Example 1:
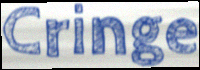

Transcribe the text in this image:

Cringe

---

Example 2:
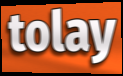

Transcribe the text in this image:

tolay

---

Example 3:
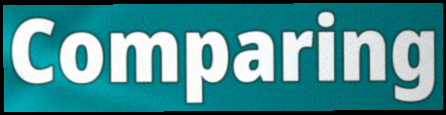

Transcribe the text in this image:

Comparing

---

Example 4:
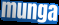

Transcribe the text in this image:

munga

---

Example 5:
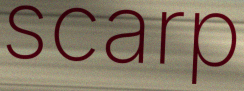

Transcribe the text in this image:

scarp